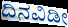
ದಿನವಿಡೀ